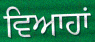
ਵਿਆਹਾਂ